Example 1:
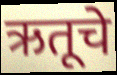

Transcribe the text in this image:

ऋतूचे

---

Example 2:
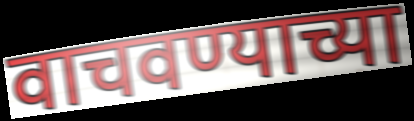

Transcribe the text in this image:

वाचवण्याच्या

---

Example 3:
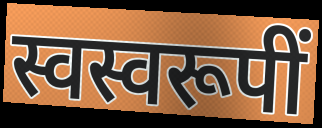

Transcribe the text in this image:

स्वस्वरूपीं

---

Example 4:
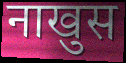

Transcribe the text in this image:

नाखुस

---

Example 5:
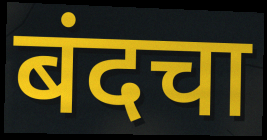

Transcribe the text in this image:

बंदचा